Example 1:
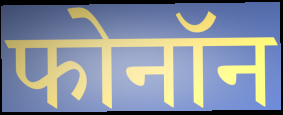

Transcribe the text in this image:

फोनॉन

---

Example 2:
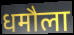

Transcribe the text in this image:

धमौला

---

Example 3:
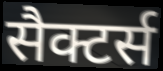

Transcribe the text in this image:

सैक्टर्स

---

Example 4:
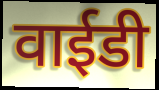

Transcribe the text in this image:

वाईडी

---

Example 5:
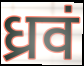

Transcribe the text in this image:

ध्रवं